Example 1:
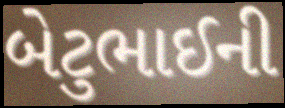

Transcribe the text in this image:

બેટુભાઈની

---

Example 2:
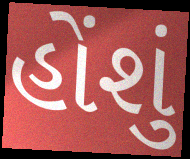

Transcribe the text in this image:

હોંશું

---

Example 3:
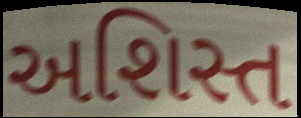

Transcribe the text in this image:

અશિસ્ત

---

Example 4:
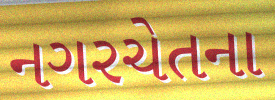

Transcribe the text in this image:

નગરચેતના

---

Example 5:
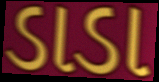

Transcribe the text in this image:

ડાડા